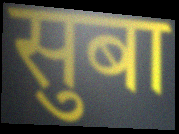
सुबा